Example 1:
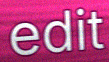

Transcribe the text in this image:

edit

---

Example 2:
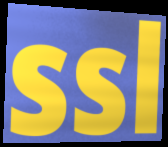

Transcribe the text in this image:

ssl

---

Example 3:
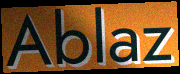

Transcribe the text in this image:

Ablaz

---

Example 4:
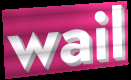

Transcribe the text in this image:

wail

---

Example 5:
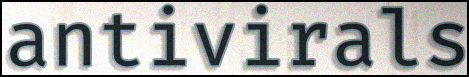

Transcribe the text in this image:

antivirals